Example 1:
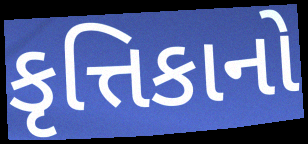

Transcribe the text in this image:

કૃત્તિકાનો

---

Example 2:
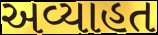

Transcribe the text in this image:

અવ્યાહત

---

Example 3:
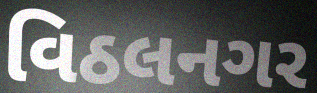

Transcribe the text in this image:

વિઠલનગર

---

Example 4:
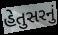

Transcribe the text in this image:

હેતુસરનું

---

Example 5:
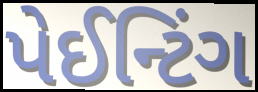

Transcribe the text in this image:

પેઈન્ટિંગ